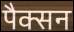
पैक्सन